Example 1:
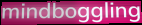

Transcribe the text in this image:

mindboggling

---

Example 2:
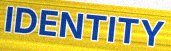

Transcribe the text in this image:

IDENTITY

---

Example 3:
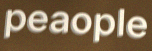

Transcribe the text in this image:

peaople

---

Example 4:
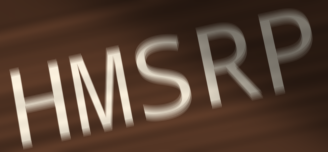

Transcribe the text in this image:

HMSRP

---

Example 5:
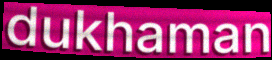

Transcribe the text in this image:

dukhaman